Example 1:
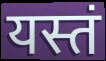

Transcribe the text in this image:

यस्तं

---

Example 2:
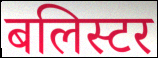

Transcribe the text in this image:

बलिस्टर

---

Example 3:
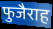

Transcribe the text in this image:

फुजैराह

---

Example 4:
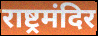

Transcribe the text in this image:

राष्ट्रमंदिर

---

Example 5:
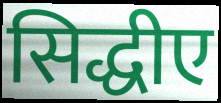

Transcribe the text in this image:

सिद्धीए